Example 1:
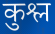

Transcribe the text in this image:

कुश्ल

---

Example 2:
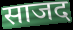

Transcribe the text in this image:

साजद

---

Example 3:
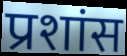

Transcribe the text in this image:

प्रशांस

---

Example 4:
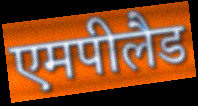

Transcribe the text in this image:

एमपीलैड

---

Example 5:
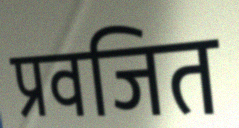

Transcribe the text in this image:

प्रवजित